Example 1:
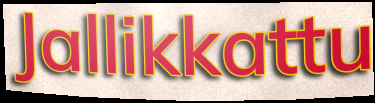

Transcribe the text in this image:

Jallikkattu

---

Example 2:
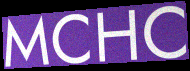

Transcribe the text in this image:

MCHC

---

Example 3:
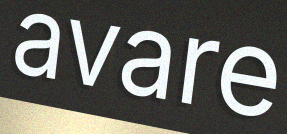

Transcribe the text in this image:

avare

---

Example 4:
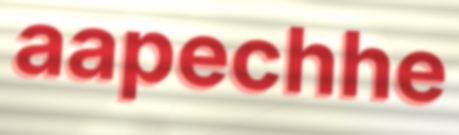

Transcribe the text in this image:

aapechhe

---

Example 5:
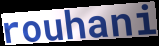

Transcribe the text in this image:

rouhani